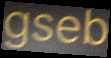
gseb